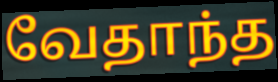
வேதாந்த